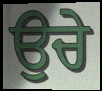
ਉਚੇ